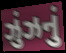
ઝુંઝનું